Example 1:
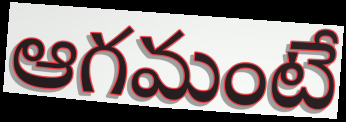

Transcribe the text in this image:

ఆగమంటే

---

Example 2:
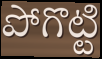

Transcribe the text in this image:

పోగొట్టి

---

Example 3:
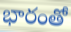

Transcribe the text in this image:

భారంతో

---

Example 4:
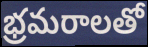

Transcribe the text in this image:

భ్రమరాలతో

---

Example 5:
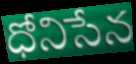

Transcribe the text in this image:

ధోనిసేన